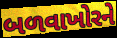
બળવાખોરને